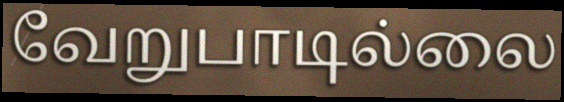
வேறுபாடில்லை